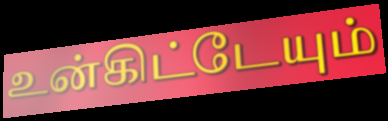
உன்கிட்டேயும்